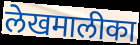
लेखमालीका